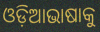
ଓଡ଼ିଆଭାଷାକୁ